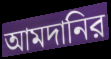
আমদানির